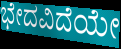
ಭೇದವಿದೆಯೇ